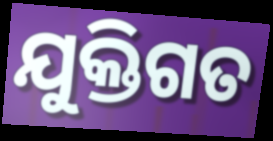
ଯୁକ୍ତିଗତ